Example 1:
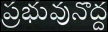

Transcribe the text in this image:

ప్రభువునొద్ద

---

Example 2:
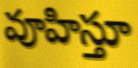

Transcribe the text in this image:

వూహిస్తూ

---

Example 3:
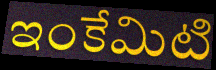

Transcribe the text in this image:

ఇంకేమిటి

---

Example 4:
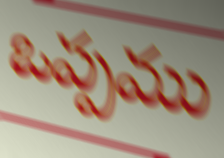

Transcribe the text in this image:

ఒప్పము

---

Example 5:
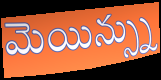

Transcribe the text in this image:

మెయిన్స్ను